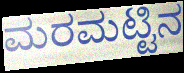
ಮರಮಟ್ಟಿನ